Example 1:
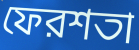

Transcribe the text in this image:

ফেরশতা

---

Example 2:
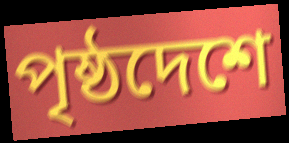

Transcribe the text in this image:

পৃষ্ঠদেশে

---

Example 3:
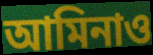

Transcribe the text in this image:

আমিনাও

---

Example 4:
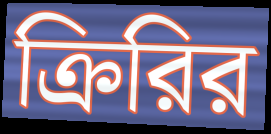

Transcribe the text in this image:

ক্রিরির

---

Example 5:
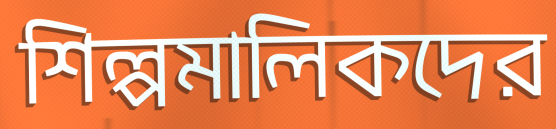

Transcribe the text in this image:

শিল্পমালিকদের